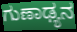
ಗುಣಾಢ್ಯನ